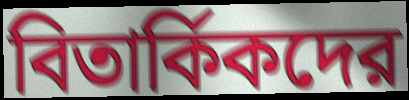
বিতার্কিকদের